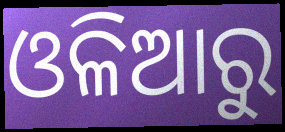
ଓଳିଆରୁ